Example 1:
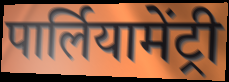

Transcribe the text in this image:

पार्लियामेंट्री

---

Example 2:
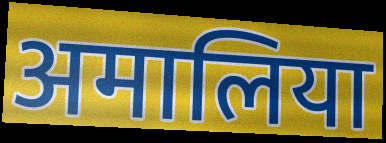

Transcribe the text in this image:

अमालिया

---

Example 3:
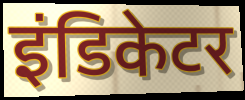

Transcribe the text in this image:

इंडिकेटर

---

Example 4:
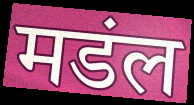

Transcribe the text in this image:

मडंल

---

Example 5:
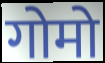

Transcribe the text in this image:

गोमो